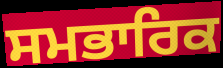
ਸਮਭਾਰਿਕ